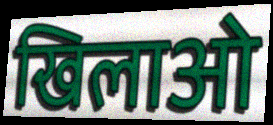
खिलाओ